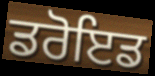
ਡਰੋਇਡ